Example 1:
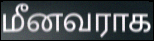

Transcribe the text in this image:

மீனவராக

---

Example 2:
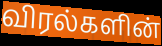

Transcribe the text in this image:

விரல்களின்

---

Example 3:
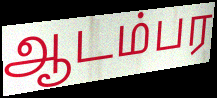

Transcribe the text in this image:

ஆடம்பர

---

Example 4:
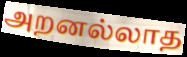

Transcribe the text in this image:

அறனல்லாத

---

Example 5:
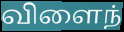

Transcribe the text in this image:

விளைந்